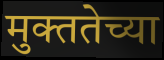
मुक्ततेच्या